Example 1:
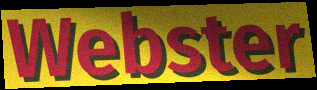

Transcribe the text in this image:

Webster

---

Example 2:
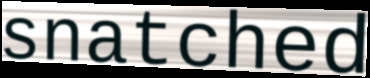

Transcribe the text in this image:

snatched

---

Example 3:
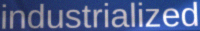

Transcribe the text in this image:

industrialized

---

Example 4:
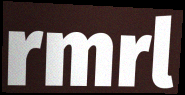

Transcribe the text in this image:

rmrl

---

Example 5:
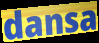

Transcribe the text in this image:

dansa